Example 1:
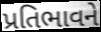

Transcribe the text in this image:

પ્રતિભાવને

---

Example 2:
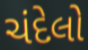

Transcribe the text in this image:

ચંદેલો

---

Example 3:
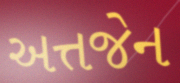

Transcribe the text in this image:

અત્તજેન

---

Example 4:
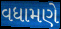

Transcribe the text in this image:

વધામણે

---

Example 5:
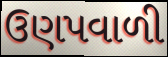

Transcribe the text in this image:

ઉણપવાળી